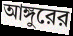
আঙ্গুরের